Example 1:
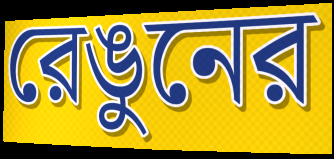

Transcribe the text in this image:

রেঙুনের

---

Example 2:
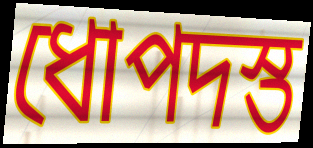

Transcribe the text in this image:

ধোপদস্ত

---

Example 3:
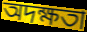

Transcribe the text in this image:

অদক্ষতা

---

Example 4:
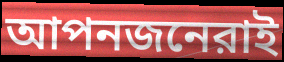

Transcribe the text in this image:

আপনজনেরাই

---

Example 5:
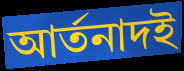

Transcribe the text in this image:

আর্তনাদই